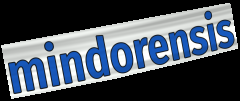
mindorensis